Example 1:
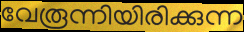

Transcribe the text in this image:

വേരൂന്നിയിരിക്കുന്ന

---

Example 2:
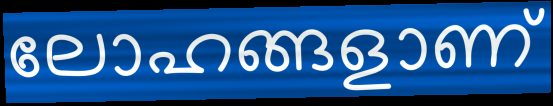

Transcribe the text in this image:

ലോഹങ്ങളാണ്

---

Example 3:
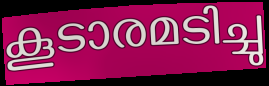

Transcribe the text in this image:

കൂടാരമടിച്ചു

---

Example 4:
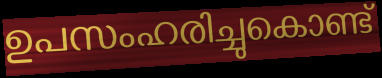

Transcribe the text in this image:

ഉപസംഹരിച്ചുകൊണ്ട്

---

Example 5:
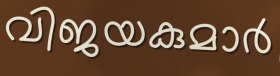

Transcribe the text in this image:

വിജയകുമാർ